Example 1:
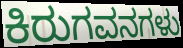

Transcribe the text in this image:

ಕಿರುಗವನಗಳು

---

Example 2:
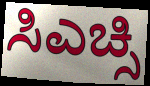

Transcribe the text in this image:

ಸಿಎಚ್ಸಿ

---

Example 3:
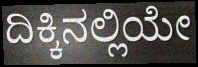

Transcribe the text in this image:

ದಿಕ್ಕಿನಲ್ಲಿಯೇ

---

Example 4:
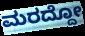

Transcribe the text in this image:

ಮರದ್ದೋ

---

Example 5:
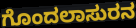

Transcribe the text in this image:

ಗೊಂದಲಾಸುರನ